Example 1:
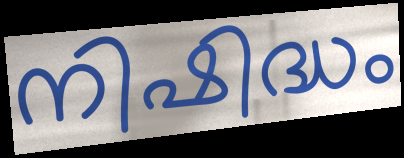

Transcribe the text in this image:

നിഷിദ്ധം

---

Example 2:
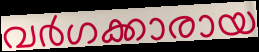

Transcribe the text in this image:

വർഗക്കാരായ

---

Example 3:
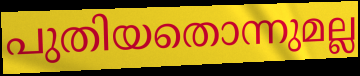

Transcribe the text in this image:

പുതിയതൊന്നുമല്ല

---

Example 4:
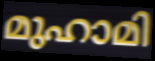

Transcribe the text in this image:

മുഹാമി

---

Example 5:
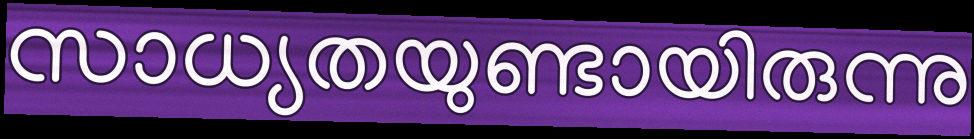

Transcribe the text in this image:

സാധ്യതയുണ്ടായിരുന്നു